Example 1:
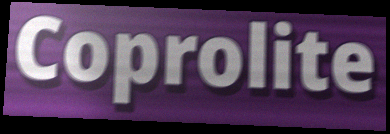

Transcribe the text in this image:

Coprolite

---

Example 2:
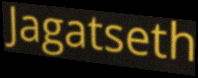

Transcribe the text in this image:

Jagatseth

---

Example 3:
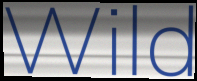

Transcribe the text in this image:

Wild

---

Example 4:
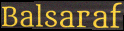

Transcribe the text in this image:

Balsaraf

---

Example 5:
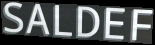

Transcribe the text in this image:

SALDEF